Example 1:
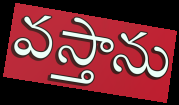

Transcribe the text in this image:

వస్తాను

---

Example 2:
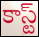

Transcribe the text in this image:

కాస్ట్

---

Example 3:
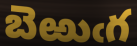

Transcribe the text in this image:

బెఱుఁగ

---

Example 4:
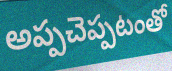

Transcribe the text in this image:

అప్పచెప్పటంతో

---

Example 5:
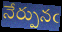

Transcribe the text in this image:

నేర్పునఁ